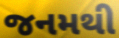
જનમથી